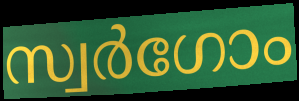
സ്വർഗോം